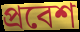
প্ৰবেশ